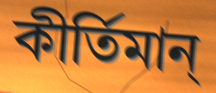
কীর্তিমান্